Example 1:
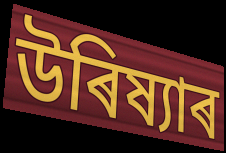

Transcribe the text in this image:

উৰিষ্যাৰ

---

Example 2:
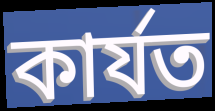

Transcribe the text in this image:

কাৰ্যত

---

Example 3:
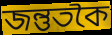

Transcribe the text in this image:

জন্তুতকৈ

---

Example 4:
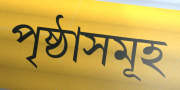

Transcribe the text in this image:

পৃষ্ঠাসমূহ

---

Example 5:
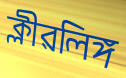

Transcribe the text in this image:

ক্লীৱলিঙ্গ